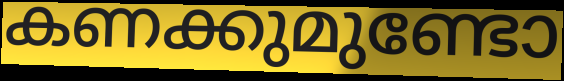
കണക്കുമുണ്ടോ